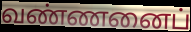
வண்ணனைப்